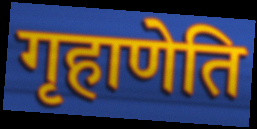
गृहाणेति